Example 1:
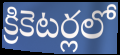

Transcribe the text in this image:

క్రికెటర్లలో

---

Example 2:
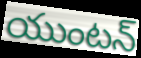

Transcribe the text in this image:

యుంటన్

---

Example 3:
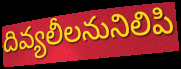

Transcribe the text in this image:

దివ్యలీలనునిలిపి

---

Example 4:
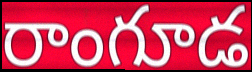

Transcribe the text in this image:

రాంగూడ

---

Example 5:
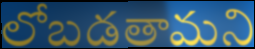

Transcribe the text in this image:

లోబడతామని